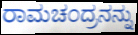
ರಾಮಚಂದ್ರನನ್ನು